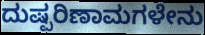
ದುಷ್ಪರಿಣಾಮಗಳೇನು